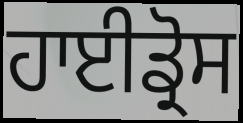
ਹਾਈਡ੍ਰੋਸ